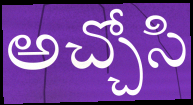
అచ్చోసి